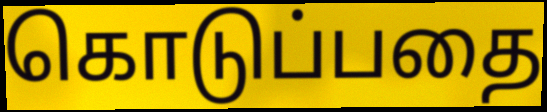
கொடுப்பதை